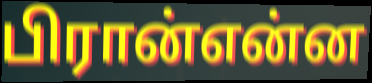
பிரான்என்ன